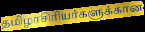
தமிழாசிரியர்களுக்கான